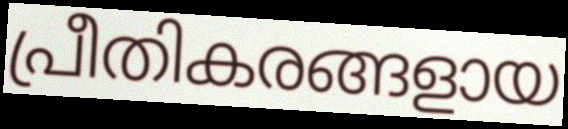
പ്രീതികരങ്ങളായ